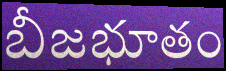
బీజభూతం